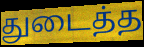
துடைத்த